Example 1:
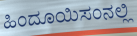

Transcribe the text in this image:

ಹಿಂದೂಯಿಸಂನಲ್ಲಿ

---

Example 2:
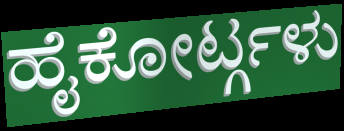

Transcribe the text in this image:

ಹೈಕೋರ್ಟ್ಗಳು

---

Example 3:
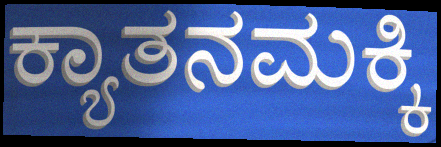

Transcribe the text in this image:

ಕ್ಯಾತನಮಕ್ಕಿ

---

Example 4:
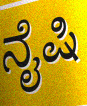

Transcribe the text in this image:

ನೈಷಿ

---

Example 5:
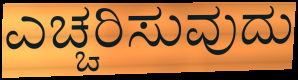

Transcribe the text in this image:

ಎಚ್ಚರಿಸುವುದು